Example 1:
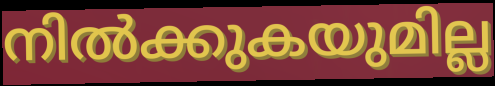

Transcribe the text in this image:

നിൽക്കുകയുമില്ല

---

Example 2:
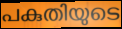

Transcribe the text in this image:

പകുതിയുടെ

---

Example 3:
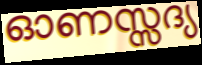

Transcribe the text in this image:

ഓണസ്സദ്യ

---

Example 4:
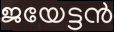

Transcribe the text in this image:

ജയേട്ടൻ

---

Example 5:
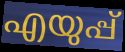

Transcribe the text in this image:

എയുപ്പ്